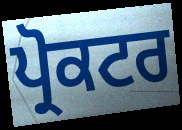
ਪ੍ਰੋਕਟਰ